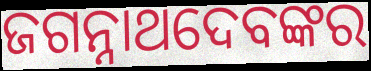
ଜଗନ୍ନାଥଦେବଙ୍କର